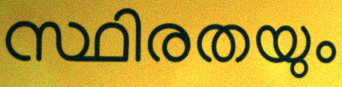
സ്ഥിരതയും